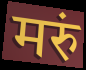
मरुं